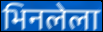
भिनलेला